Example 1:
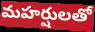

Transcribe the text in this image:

మహర్షులతో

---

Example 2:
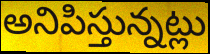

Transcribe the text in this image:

అనిపిస్తున్నట్లు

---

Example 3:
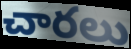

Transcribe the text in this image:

చారలు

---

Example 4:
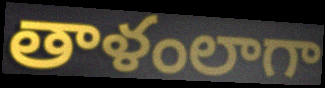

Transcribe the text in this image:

తాళంలాగా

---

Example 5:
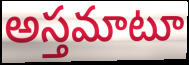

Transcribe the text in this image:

అస్తమాటూ